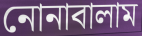
নোনাবালাম